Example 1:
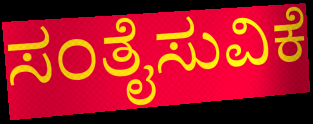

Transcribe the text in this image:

ಸಂತೈಸುವಿಕೆ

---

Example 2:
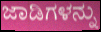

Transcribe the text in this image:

ಜಾಡಿಗಳನ್ನು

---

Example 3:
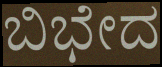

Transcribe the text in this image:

ಬಿಭೇದ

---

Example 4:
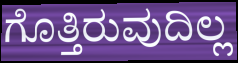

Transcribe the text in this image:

ಗೊತ್ತಿರುವುದಿಲ್ಲ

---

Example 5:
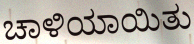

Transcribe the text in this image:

ಚಾಳಿಯಾಯಿತು